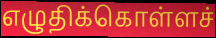
எழுதிக்கொள்ளச்